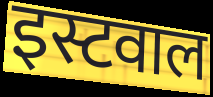
इस्टवाल